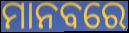
ମାନବରେ